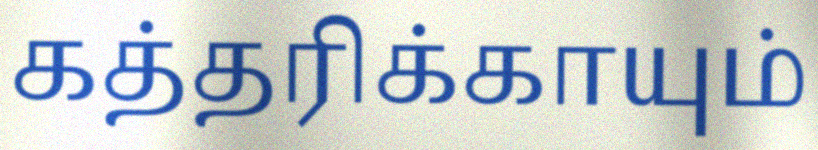
கத்தரிக்காயும்